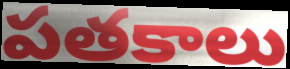
పతకాలు